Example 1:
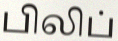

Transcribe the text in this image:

பிலிப்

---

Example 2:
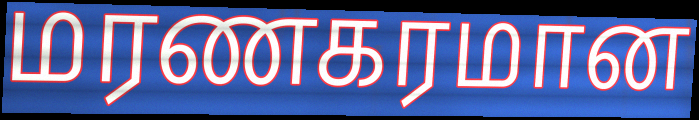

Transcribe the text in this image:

மரணகரமான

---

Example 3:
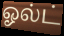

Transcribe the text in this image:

ஓல்ட்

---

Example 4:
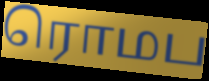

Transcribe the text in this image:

ரொமப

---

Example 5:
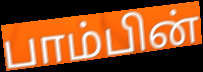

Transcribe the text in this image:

பாம்பின்